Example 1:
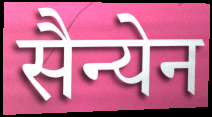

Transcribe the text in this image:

सैन्येन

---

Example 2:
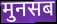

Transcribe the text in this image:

मुनसब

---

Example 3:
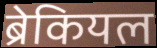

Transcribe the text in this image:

ब्रेकियल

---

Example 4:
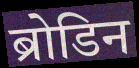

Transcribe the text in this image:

ब्रोडिन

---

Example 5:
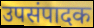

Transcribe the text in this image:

उपसंपादक